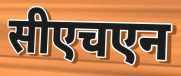
सीएचएन